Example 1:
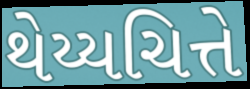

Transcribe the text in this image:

થેય્યચિત્તે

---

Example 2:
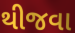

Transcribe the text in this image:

થીજવા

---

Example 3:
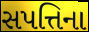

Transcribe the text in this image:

સપત્તિના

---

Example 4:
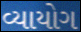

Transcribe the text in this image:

વ્યાયોગ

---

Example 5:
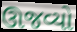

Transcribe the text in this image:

ઊજવ્યો